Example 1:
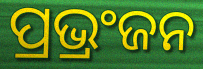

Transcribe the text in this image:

ପ୍ରଭ୍ରଂଜନ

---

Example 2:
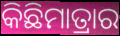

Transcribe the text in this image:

କିଛିମାତ୍ରାର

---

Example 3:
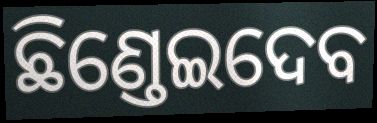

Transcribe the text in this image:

ଛିଣ୍ଡେଇଦେବ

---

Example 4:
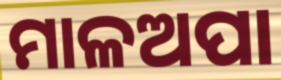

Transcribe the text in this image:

ମାଳଅପା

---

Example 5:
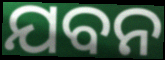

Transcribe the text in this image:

ଯବନ